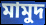
মামুদ